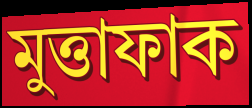
মুত্তাফাক